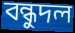
বন্ধুদল